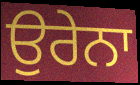
ਉਰੇਨਾ